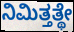
ನಿಮಿತ್ತತ್ಥೇ